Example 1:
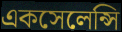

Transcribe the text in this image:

একসেলেন্সি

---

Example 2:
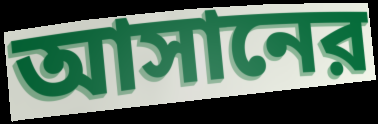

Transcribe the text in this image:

আসানের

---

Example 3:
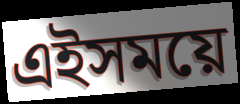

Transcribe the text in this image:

এইসময়ে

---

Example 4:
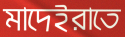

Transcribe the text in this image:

মাদেইরাতে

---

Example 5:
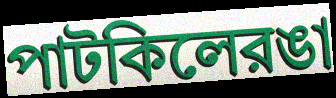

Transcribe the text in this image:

পাটকিলেরঙা